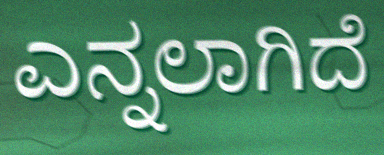
ಎನ್ನಲಾಗಿದೆ